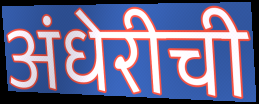
अंधेरीची